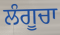
ਲੰਗੂਚਾ